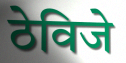
ठेविजे